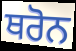
ਥਰੋਨ